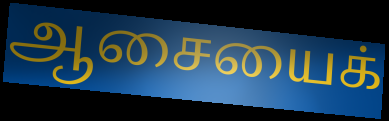
ஆசையைக்